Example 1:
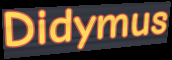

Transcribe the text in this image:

Didymus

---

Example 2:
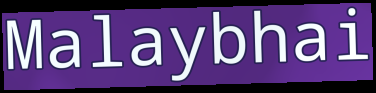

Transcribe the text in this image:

Malaybhai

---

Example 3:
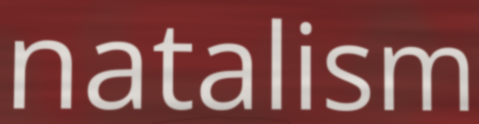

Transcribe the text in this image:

natalism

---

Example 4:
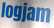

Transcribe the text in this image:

logjam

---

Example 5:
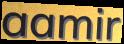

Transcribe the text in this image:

aamir